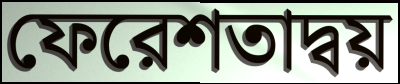
ফেরেশতাদ্বয়